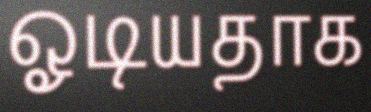
ஓடியதாக